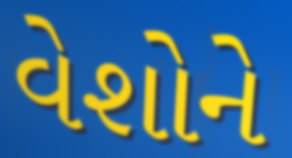
વેશોને